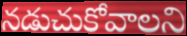
నడుచుకోవాలని